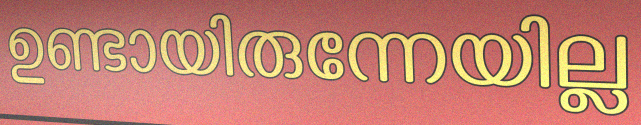
ഉണ്ടായിരുന്നേയില്ല